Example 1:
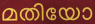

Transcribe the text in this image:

മതിയോ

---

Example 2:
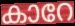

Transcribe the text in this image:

കാറേ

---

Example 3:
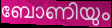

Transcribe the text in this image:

ബോണിയും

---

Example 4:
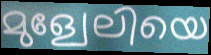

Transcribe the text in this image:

മുള്വേലിയെ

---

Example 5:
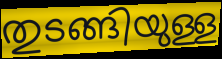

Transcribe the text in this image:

തുടങ്ങിയുള്ള